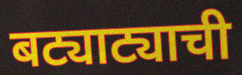
बट्याट्याची